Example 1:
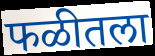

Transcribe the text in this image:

फळीतला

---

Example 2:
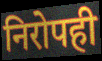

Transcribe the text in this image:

निरोपही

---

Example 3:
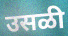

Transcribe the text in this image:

उसळी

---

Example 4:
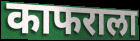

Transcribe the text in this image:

काफराला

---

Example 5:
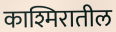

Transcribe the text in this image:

काश्मिरातील